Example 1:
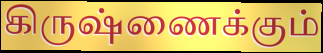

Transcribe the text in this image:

கிருஷ்ணைக்கும்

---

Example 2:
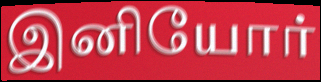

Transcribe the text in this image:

இனியோர்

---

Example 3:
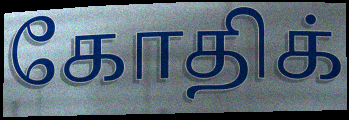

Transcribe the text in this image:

கோதிக்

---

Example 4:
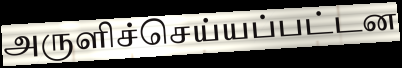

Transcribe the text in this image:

அருளிச்செய்யப்பட்டன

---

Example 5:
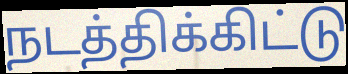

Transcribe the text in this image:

நடத்திக்கிட்டு